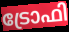
ട്രോഫി